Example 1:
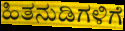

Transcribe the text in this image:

ಹಿತನುಡಿಗಳಿಗೆ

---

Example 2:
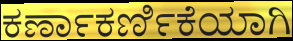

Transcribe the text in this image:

ಕರ್ಣಾಕರ್ಣಿಕೆಯಾಗಿ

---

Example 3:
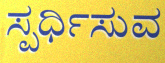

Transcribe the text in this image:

ಸ್ಪರ್ಧಿಸುವ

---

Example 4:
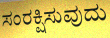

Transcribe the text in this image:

ಸಂರಕ್ಷಿಸುವುದು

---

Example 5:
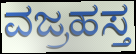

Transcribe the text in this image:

ವಜ್ರಹಸ್ತ